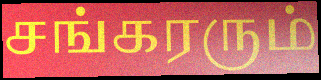
சங்கரரும்